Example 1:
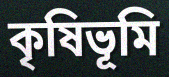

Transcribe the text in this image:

কৃষিভূমি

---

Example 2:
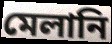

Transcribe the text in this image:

মেলানি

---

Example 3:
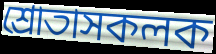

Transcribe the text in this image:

শ্ৰোতাসকলক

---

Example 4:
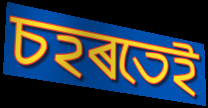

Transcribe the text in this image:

চহৰতেই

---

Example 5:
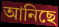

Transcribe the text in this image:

আনিছে